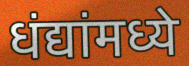
धंद्यांमध्ये